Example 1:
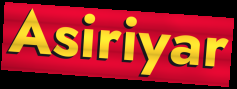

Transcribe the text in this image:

Asiriyar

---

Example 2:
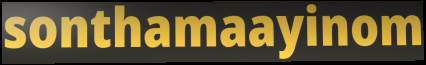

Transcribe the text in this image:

sonthamaayinom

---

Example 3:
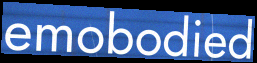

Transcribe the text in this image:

emobodied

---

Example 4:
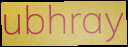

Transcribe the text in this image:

ubhray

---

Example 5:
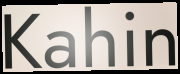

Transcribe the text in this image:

Kahin